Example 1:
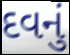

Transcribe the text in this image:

દવનું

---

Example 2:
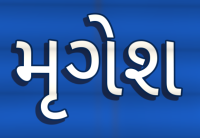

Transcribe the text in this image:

મૃગેશ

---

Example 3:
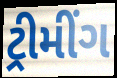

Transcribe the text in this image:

ટ્રીમીંગ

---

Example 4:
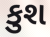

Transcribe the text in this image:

કુશ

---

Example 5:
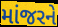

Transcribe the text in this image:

માંજરને